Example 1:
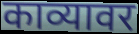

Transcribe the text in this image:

काव्यावर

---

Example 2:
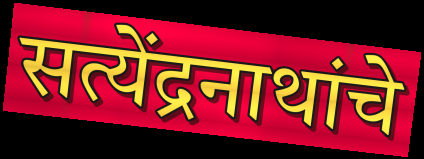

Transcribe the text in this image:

सत्येंद्रनाथांचे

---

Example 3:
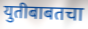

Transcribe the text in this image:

युतीबाबतचा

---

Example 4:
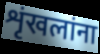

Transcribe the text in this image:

शृंखलांना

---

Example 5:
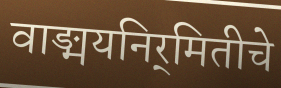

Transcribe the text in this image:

वाङ्मयनिर्मितीचे